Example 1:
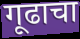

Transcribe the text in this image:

गूढाचा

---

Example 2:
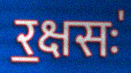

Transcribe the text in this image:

र॒क्षसः॑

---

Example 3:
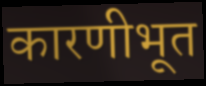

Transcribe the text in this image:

कारणीभूत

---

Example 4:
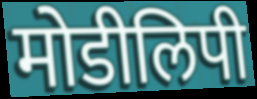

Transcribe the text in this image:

मोडीलिपी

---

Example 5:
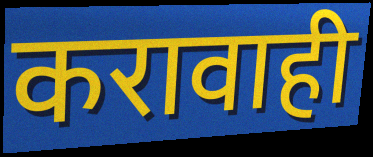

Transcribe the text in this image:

करावाही